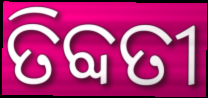
ତିବ୍ଦତୀ